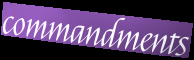
commandments